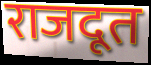
राजदूत